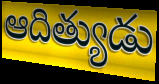
ఆదిత్యుడు